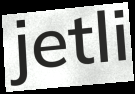
jetli